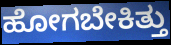
ಹೋಗಬೇಕಿತ್ತು